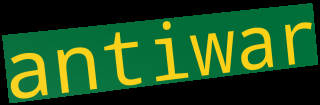
antiwar